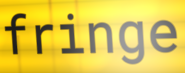
fringe